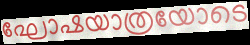
ഘോഷയാത്രയോടെ